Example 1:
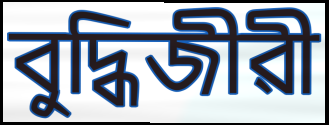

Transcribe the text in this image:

বুদ্ধিজীৱী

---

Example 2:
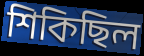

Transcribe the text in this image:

শিকিছিল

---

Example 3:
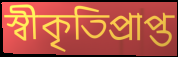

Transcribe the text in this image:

স্বীকৃতিপ্ৰাপ্ত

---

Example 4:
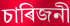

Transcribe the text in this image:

চাৰিজনী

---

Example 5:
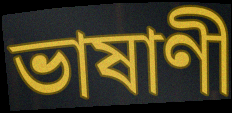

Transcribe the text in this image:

ভাষাণী